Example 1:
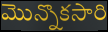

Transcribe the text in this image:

మొన్నొకసారి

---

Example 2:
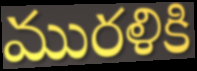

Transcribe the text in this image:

మురళికి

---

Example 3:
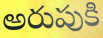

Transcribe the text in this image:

అరుపుకి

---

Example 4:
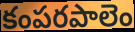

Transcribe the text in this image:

కంపరపాలెం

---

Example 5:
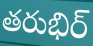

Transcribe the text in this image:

తరుభిర్